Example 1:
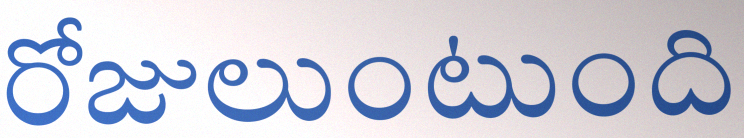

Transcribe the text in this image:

రోజులుంటుంది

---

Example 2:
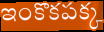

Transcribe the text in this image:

ఇంకొకపక్క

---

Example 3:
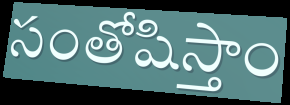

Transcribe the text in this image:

సంతోషిస్తాం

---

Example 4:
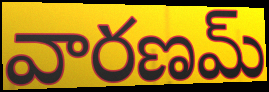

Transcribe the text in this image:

వారణమ్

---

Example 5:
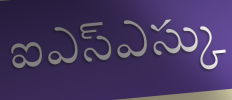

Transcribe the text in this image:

ఐఎస్ఎస్కు